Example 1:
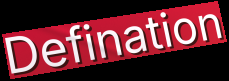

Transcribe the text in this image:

Defination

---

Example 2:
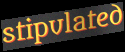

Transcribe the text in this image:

stipulated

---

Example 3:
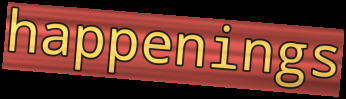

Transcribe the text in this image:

happenings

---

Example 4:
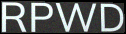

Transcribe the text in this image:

RPWD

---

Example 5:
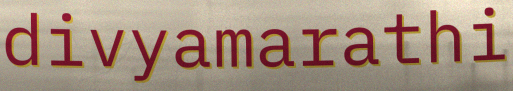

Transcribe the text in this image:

divyamarathi